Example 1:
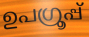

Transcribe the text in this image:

ഉപഗ്രൂപ്പ്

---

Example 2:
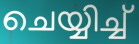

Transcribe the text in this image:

ചെയ്യിച്ച്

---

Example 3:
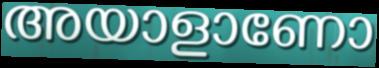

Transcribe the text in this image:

അയാളാണോ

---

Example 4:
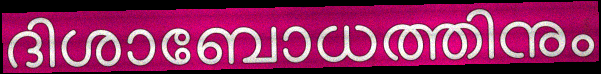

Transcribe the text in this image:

ദിശാബോധത്തിനും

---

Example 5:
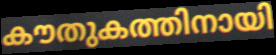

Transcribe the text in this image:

കൗതുകത്തിനായി